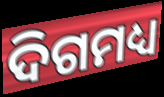
ଦିଗମଧ୍ୟ